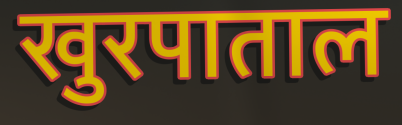
खुरपाताल